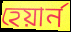
হেয়ার্ন